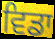
ਵਿਡਾ